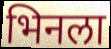
भिनला